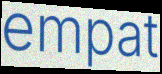
empat